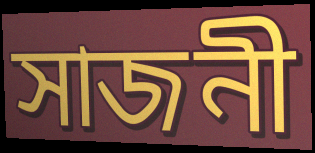
সাজনী